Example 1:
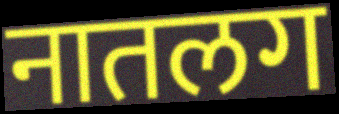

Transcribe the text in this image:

नातलग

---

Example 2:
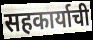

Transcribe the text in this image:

सहकार्याची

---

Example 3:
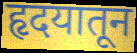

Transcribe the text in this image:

हृदयातून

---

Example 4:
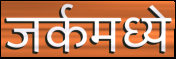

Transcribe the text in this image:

जर्कमध्ये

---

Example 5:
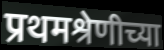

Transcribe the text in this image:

प्रथमश्रेणीच्या